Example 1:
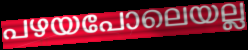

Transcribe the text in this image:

പഴയപോലെയല്ല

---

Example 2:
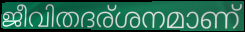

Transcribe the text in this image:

ജീവിതദര്ശനമാണ്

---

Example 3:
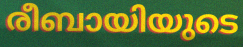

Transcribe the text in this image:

രീബായിയുടെ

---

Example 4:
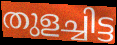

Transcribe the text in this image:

തുളച്ചിട്ട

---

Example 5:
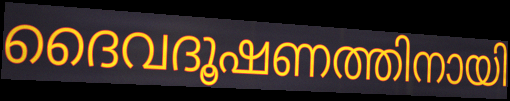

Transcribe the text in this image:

ദൈവദൂഷണത്തിനായി